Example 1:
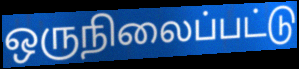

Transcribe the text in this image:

ஒருநிலைப்பட்டு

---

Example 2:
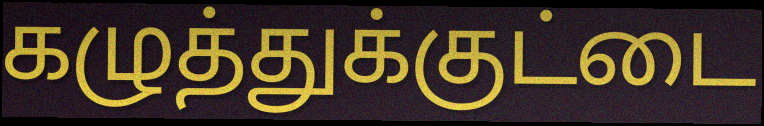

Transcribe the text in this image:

கழுத்துக்குட்டை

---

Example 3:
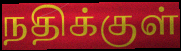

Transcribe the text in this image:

நதிக்குள்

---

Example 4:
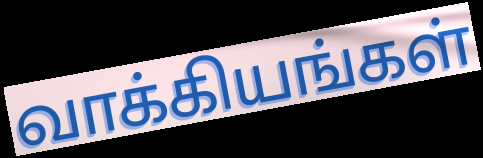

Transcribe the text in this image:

வாக்கியங்கள்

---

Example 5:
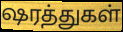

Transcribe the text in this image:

ஷரத்துகள்